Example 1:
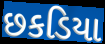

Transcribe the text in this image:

છકડિયા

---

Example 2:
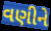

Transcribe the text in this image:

વણીને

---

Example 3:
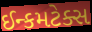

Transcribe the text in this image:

ઈન્કમટેક્સ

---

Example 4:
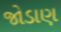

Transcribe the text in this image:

જોડાણ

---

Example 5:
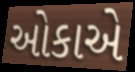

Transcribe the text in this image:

ઓકાએ